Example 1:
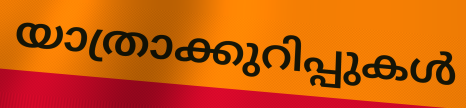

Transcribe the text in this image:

യാത്രാക്കുറിപ്പുകൾ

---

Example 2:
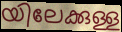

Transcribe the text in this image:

യിലേക്കുള്ള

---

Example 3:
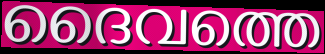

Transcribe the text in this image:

ദൈവത്തെ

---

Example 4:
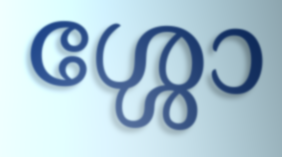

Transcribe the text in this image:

ശ്ശോ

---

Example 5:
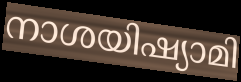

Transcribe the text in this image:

നാശയിഷ്യാമി